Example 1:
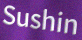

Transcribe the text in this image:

Sushin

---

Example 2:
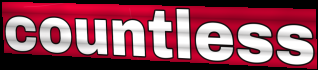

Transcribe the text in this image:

countless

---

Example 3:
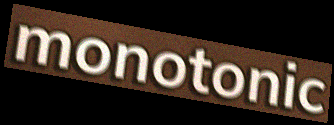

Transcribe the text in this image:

monotonic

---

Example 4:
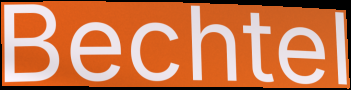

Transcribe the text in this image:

Bechtel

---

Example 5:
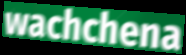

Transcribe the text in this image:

wachchena